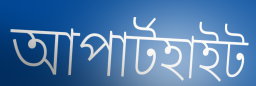
আপাৰ্টহাইট